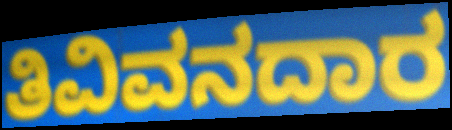
ತಿವಿವನದಾರ